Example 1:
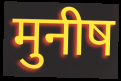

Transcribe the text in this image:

मुनीष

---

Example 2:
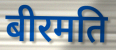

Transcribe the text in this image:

बीरमति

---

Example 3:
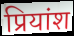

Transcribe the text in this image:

प्रियांश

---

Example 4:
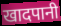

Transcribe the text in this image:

खादपानी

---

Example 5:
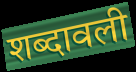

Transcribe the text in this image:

शब्दावली